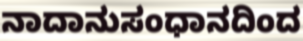
ನಾದಾನುಸಂಧಾನದಿಂದ